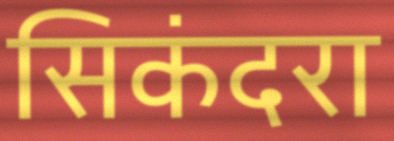
सिकंदरा